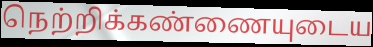
நெற்றிக்கண்ணையுடைய